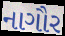
નાગૌર